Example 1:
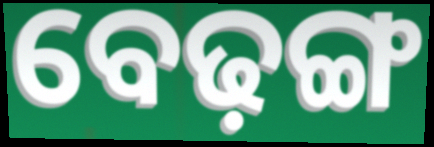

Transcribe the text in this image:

ବେଢ଼ଙ୍ଗ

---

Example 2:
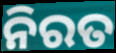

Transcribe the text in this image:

ନିରତ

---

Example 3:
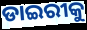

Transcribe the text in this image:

ଡାଇରୀକୁ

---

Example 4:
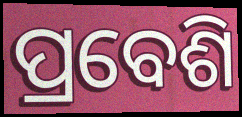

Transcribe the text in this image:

ପ୍ରବେଶି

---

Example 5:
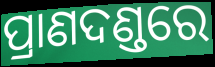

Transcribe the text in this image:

ପ୍ରାଣଦଣ୍ଡରେ